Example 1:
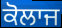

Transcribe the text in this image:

ਕੋਲਾਜ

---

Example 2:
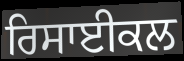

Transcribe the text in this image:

ਰਿਸਾਈਕਲ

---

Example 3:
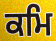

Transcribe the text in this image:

ਕਮਿ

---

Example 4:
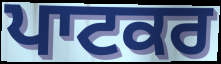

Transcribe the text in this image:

ਪਾਟਕਰ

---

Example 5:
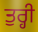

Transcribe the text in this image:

ਤੁਰ੍ਹੀ